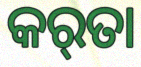
କର୍‌ତା